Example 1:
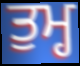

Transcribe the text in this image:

ਤੁਮ੍ਹ੍ਹ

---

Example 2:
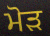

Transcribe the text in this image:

ਮੋਡ਼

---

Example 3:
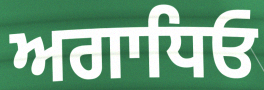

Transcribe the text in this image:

ਅਗਾਧਿਓ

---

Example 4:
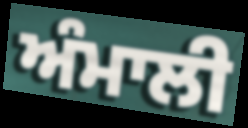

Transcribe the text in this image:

ਅੰਮਾਲੀ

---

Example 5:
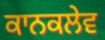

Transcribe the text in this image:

ਕਾਨਕਲੇਵ